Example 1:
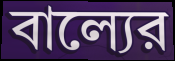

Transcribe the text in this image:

বাল্যের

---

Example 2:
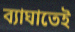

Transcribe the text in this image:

ব্যাঘাতেই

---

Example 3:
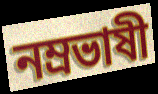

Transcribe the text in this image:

নম্রভাষী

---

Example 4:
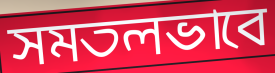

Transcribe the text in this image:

সমতলভাবে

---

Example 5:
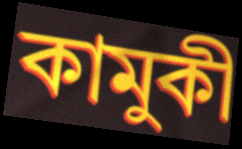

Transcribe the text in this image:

কামুকী